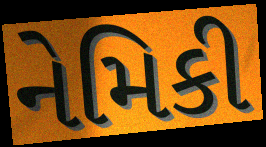
નેમિકી